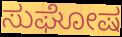
ಸುಘೋಷ